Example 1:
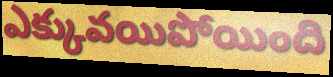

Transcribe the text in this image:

ఎక్కువయిపోయింది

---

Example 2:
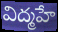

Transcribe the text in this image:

విద్మహే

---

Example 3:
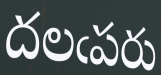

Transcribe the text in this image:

దలఁపరు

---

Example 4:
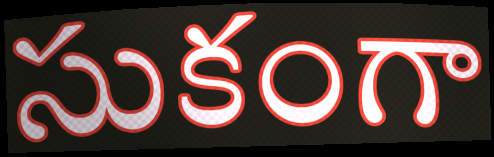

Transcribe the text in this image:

సుకంగా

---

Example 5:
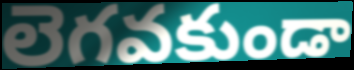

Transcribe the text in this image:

లెగవకుండా